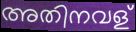
അതിനവള്